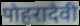
पोहरादेवी